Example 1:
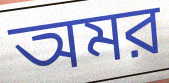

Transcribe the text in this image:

অমর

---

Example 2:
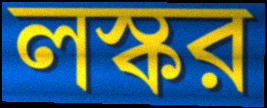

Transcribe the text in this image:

লস্কর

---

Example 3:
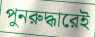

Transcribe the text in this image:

পুনরুদ্ধারেই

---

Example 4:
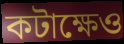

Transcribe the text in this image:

কটাক্ষেও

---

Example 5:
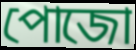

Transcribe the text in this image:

পোজো